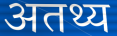
अतथ्य